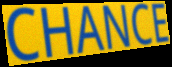
CHANCE